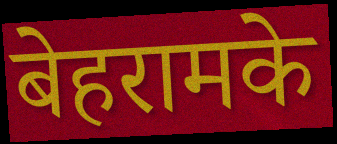
बेहरामके